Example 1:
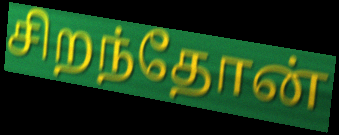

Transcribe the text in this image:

சிறந்தோன்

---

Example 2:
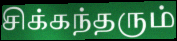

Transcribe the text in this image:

சிக்கந்தரும்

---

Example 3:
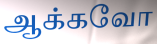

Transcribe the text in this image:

ஆக்கவோ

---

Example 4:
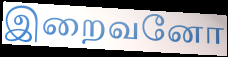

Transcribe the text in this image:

இறைவனோ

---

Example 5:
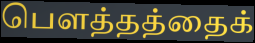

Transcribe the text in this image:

பௌத்தத்தைக்